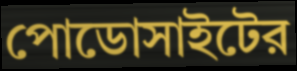
পোডোসাইটের